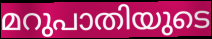
മറുപാതിയുടെ